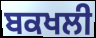
ਬਕਖਲੀ